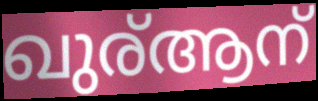
ഖുര്ആന്